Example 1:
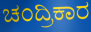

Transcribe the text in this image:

ಚಂದ್ರಿಕಾರ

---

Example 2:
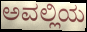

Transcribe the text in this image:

ಅವಲ್ಲಿಯ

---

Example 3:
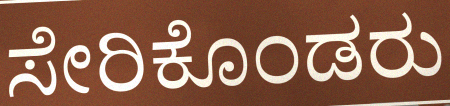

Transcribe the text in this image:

ಸೇರಿಕೊಂಡರು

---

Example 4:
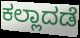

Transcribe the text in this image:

ಕಲ್ಲಾದಡೆ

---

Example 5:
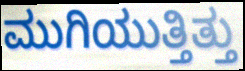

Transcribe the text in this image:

ಮುಗಿಯುತ್ತಿತ್ತು